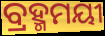
ବ୍ରହ୍ମମୟୀ